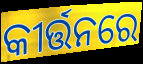
କୀର୍ତ୍ତନରେ